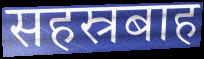
सहस्रबाह